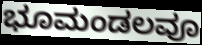
ಭೂಮಂಡಲವೂ